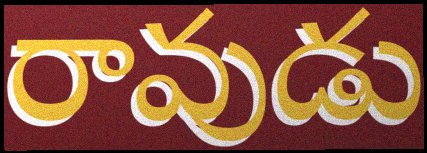
రావుడు